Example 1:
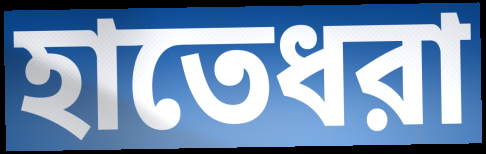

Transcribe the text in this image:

হাতেধরা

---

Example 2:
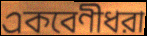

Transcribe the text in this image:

একবেণীধরা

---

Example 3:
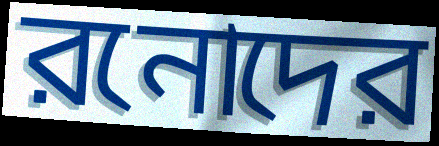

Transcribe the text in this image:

রনোদের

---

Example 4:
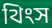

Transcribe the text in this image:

থিংস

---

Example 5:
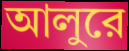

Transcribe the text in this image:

আলুরে